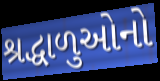
શ્રદ્ધાળુઓનો